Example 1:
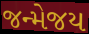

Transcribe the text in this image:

જન્મેજય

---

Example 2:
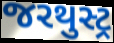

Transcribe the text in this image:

જરથુસ્ટ્ર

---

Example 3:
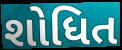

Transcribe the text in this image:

શોધિત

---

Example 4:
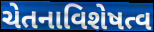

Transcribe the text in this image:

ચેતનાવિશેષત્વ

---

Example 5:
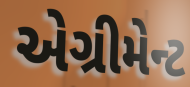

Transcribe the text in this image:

એગ્રીમેન્ટ